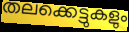
തലക്കെട്ടുകളും